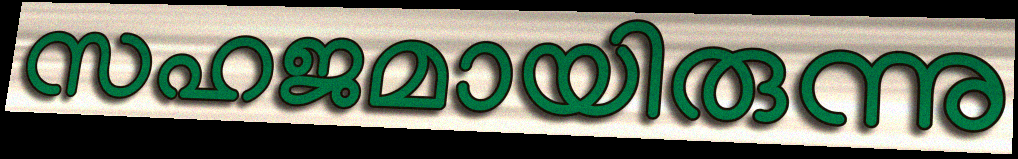
സഹജമായിരുന്നു